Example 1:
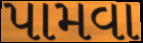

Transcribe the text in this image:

પામવા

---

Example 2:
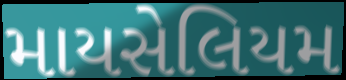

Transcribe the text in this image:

માયસેલિયમ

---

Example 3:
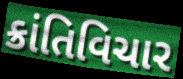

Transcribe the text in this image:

ક્રાંતિવિચાર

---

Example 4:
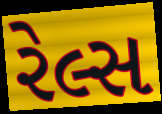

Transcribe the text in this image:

રેલ્સ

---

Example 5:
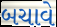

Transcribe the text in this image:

બચાવે